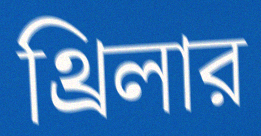
থ্রিলার